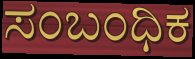
ಸಂಬಂಧಿಕ